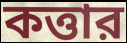
কত্তার